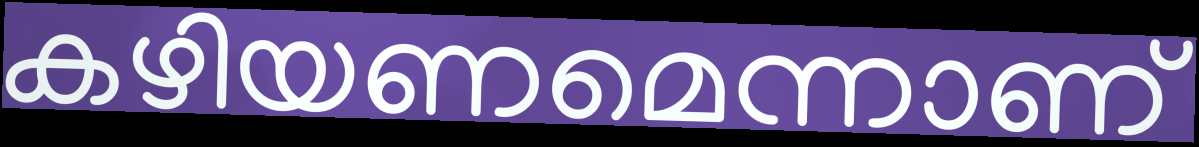
കഴിയണമെന്നാണ്